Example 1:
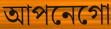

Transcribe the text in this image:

আপনেগো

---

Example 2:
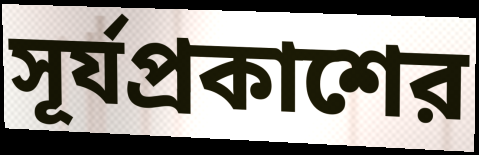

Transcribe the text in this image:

সূর্যপ্রকাশের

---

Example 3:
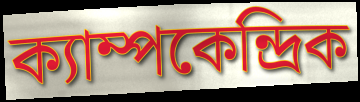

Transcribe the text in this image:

ক্যাম্পকেন্দ্রিক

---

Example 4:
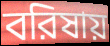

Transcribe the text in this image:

বরিষায়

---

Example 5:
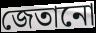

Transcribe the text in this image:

জেতানো